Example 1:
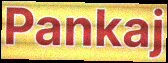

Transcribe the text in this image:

Pankaj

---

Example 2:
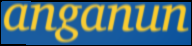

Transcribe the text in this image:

anganun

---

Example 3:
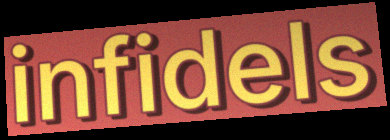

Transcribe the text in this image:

infidels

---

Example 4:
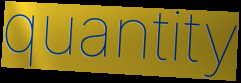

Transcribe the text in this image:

quantity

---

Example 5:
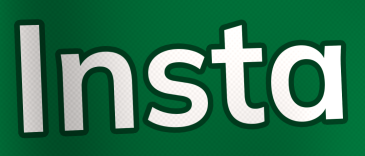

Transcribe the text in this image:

Insta